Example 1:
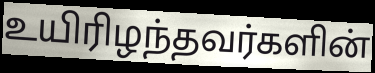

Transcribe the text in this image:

உயிரிழந்தவர்களின்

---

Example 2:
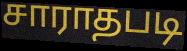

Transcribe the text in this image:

சாராதபடி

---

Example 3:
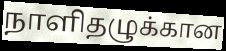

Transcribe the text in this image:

நாளிதழுக்கான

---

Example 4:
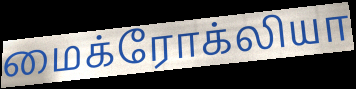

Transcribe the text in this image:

மைக்ரோக்லியா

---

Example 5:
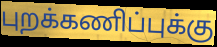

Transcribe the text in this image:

புறக்கணிப்புக்கு